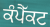
ਕੰਪੈੱਕਟ